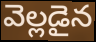
వెల్లడైన